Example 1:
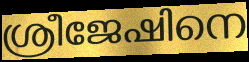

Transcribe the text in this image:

ശ്രീജേഷിനെ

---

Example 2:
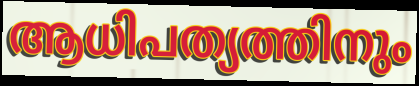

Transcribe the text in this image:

ആധിപത്യത്തിനും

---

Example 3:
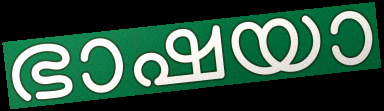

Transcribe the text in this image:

ഭാഷയാ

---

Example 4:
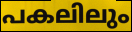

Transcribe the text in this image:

പകലിലും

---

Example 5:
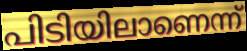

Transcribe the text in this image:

പിടിയിലാണെന്ന്